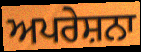
ਅਪਰੇਸ਼ਨਾ